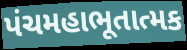
પંચમહાભૂતાત્મક